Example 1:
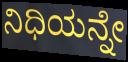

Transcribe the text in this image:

ನಿಧಿಯನ್ನೇ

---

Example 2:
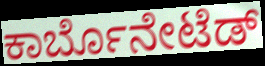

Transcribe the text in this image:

ಕಾರ್ಬೊನೇಟೆಡ್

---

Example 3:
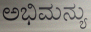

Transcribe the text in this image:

ಅಭಿಮನ್ಯು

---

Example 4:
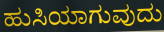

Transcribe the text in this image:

ಹುಸಿಯಾಗುವುದು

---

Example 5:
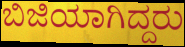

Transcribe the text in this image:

ಬಿಜಿಯಾಗಿದ್ದರು